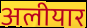
अलीयार